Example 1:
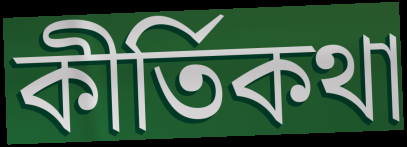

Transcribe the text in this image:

কীর্তিকথা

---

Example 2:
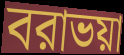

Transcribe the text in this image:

বরাভয়া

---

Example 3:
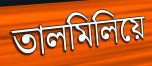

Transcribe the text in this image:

তালমিলিয়ে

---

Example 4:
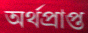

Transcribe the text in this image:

অর্থপ্রাপ্ত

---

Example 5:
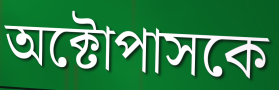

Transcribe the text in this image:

অক্টোপাসকে